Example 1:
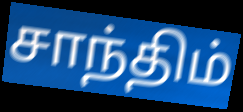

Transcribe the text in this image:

சாந்திம்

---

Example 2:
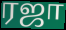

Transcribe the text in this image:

ரஜா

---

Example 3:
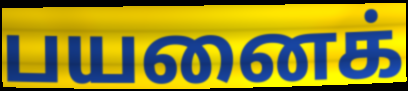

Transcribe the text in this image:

பயனைக்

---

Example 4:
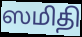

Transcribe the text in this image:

ஸமிதி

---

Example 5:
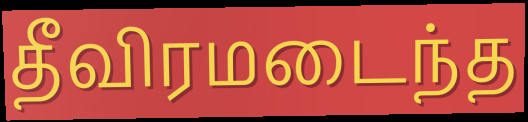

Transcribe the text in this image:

தீவிரமடைந்த